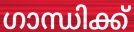
ഗാന്ധിക്ക്